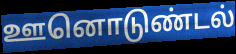
ஊனொடுண்டல்